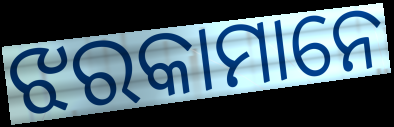
ଝରକାମାନେ